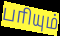
பரியும்